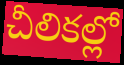
చీలికల్లో